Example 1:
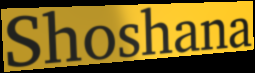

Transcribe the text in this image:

Shoshana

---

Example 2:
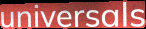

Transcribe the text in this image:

universals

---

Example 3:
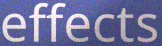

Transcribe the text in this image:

effects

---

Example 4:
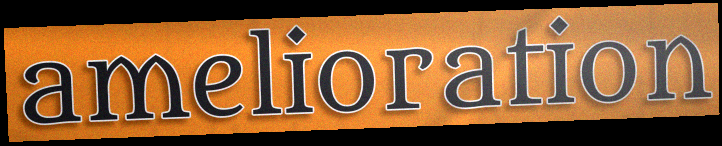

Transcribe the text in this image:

amelioration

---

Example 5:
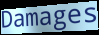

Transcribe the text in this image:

Damages